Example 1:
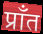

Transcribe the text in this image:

प्राँत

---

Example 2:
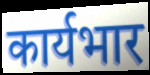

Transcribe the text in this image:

कार्यभार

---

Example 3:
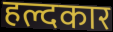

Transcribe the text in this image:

हल्दकार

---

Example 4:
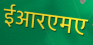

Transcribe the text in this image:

ईआरएमए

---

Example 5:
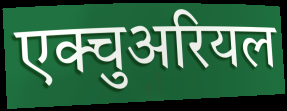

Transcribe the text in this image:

एक्चुअरियल